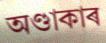
অণ্ডাকাৰ